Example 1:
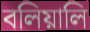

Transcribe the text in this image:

বলিয়ালি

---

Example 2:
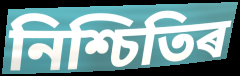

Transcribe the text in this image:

নিশ্চিতিৰ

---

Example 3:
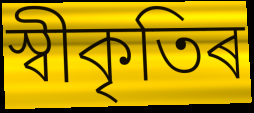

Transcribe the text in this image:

স্বীকৃতিৰ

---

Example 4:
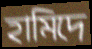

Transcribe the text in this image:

হামিদে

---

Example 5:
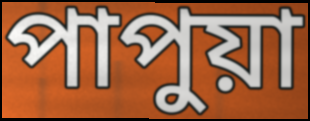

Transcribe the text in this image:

পাপুয়া